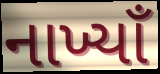
નાખ્યાઁ